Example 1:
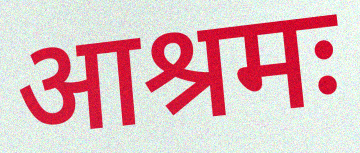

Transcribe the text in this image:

आश्रमः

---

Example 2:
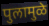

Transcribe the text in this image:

पुलामुळे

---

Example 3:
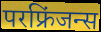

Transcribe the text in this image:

परफ्रिंजन्स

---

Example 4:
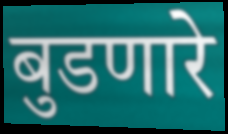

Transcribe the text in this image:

बुडणारे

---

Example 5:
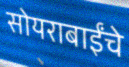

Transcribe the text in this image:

सोयराबाईंचे